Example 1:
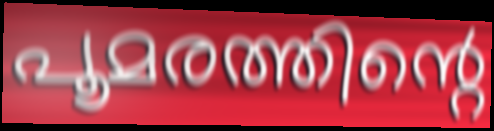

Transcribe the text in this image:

പൂമരത്തിന്റെ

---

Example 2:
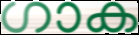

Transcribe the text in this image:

ഗാക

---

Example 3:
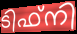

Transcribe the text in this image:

ടിഫ്നി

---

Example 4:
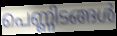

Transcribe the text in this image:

പെണ്ണിടങ്ങൾ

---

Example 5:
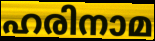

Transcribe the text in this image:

ഹരിനാമ